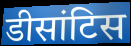
डीसांटिस